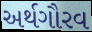
અર્થગૌરવ